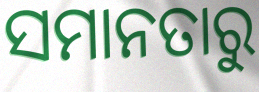
ସମାନତାରୁ